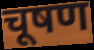
चूषण